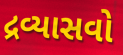
દ્રવ્યાસવો